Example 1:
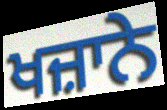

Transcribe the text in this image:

ਖਜ਼ਾਨੇ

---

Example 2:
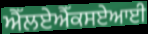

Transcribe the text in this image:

ਐੱਲਏਐੱਕਸਏਆਈ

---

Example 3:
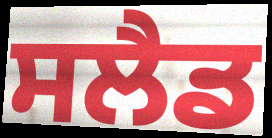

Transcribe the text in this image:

ਸਲੈਡ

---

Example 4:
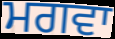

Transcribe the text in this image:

ਮਗਵਾ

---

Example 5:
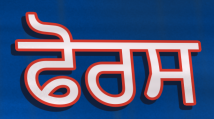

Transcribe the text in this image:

ਫੋਰਸ